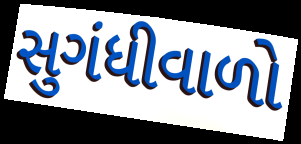
સુગંધીવાળો